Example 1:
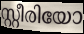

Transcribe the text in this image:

സ്റ്റീരിയോ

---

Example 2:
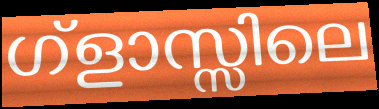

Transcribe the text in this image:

ഗ്ളാസ്സിലെ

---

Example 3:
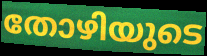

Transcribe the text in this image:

തോഴിയുടെ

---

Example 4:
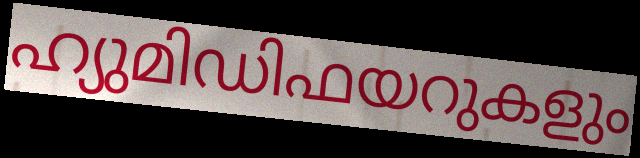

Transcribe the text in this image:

ഹ്യുമിഡിഫയറുകളും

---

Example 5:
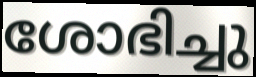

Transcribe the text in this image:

ശോഭിച്ചു